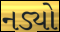
નડ્યો